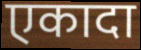
एकादा